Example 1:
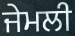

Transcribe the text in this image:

ਜੇਮਲੀ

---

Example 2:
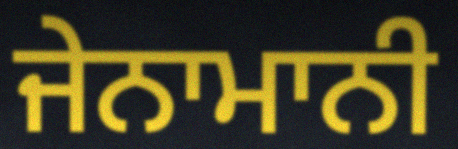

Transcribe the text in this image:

ਜੇਨਾਮਾਨੀ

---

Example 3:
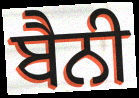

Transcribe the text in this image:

ਬੈਨੀ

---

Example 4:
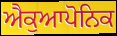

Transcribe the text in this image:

ਐਕੁਆਪੋਨਿਕ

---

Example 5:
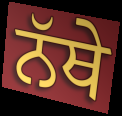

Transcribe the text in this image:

ਨੱਥੇ